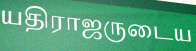
யதிராஜருடைய